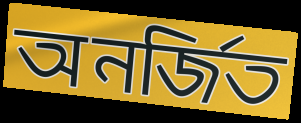
অনর্জিত